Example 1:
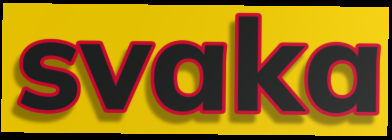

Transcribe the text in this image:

svaka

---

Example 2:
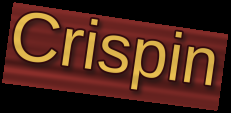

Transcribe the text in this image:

Crispin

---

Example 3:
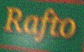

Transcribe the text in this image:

Rafto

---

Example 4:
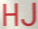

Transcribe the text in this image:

HJ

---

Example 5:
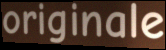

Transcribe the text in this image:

originale